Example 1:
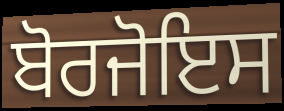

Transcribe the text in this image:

ਬੋਰਜੋਇਸ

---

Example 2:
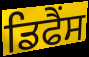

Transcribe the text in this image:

ਡਿਫੈਂਸ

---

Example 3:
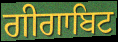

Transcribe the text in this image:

ਗੀਗਾਬਿਟ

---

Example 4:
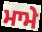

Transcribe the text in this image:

ਮਾਮੇ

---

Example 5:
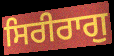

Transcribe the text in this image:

ਸਿਰੀਰਾਗੁ